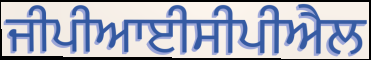
ਜੀਪੀਆਈਸੀਪੀਐਲ